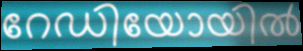
റേഡിയോയിൽ